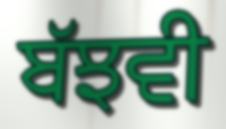
ਬੱਝਵੀ